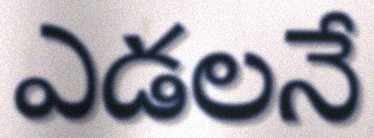
ఎడలనే